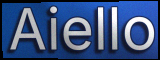
Aiello